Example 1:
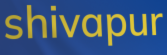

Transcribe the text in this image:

shivapur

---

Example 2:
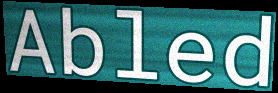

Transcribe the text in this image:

Abled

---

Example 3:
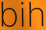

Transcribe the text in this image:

bih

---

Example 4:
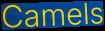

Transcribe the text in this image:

Camels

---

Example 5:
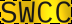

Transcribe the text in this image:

SWCC